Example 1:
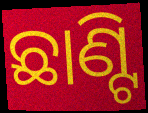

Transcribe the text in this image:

ଛାଣ୍ଟି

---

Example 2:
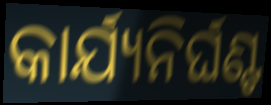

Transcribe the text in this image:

କାର୍ଯ୍ୟନିର୍ଘଣ୍ଟ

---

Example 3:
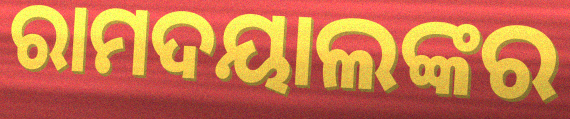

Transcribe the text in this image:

ରାମଦୟାଲଙ୍କର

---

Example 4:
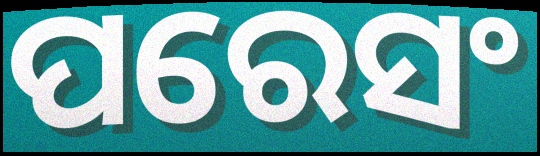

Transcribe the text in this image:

ପରେସଂ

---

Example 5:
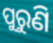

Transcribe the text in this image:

ପୁରୁଣି